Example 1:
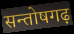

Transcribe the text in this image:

सन्तोषगढ़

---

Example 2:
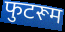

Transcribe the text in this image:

फुटरूम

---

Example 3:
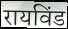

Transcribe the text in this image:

रायविंड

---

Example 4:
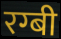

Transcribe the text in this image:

रग्‍बी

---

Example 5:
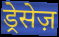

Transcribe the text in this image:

ड्रेसेज़